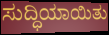
ಸುದ್ಧಿಯಾಯಿತು